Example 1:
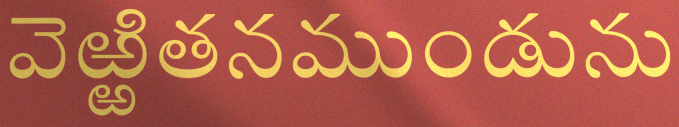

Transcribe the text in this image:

వెఱ్ఱితనముండును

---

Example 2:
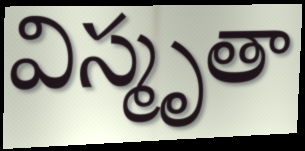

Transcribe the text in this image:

విస్మృతా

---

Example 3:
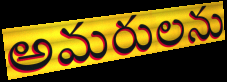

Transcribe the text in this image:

అమరులను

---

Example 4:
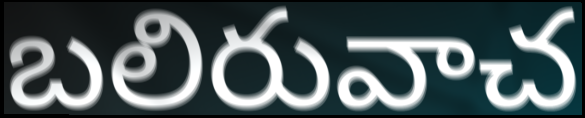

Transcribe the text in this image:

బలిరువాచ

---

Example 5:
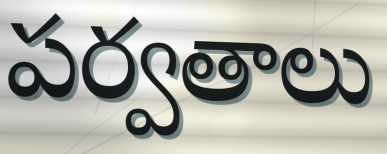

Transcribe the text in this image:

పర్వతాలు